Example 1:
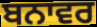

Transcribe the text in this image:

ਬਨਾਵਰ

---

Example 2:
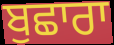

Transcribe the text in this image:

ਬੁਛਾਰਾ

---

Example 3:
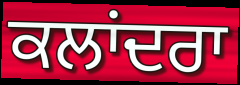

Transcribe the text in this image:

ਕਲਾਂਦਰਾ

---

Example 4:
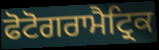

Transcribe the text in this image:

ਫੋਟੋਗਰਾਮੈਟ੍ਰਿਕ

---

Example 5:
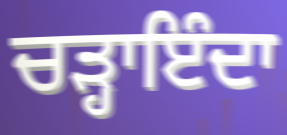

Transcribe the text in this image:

ਚੜ੍ਹਾਇੰਦਾ